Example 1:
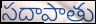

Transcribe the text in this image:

సదాపాతు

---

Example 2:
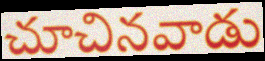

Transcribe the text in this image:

చూచినవాడు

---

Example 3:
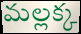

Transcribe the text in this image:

మల్లక్క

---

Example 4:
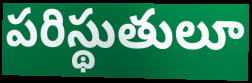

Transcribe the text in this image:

పరిస్థుతులూ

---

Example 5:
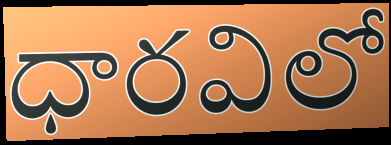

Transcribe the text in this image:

ధారవిలో